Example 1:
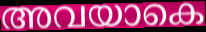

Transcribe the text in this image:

അവയാകെ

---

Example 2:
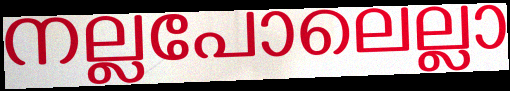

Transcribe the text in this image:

നല്ലപോലെല്ലാ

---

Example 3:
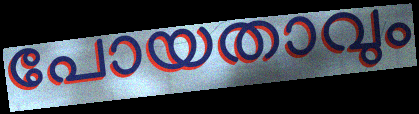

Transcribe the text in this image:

പോയതാവും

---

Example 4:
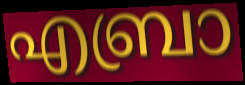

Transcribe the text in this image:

എബ്രാ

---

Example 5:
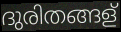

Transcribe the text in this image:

ദുരിതങ്ങള്